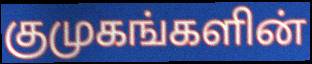
குமுகங்களின்